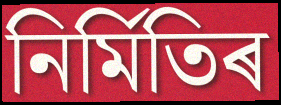
নিৰ্মিতিৰ